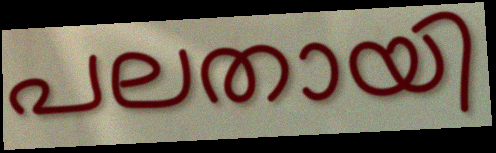
പലതായി